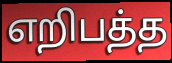
எறிபத்த